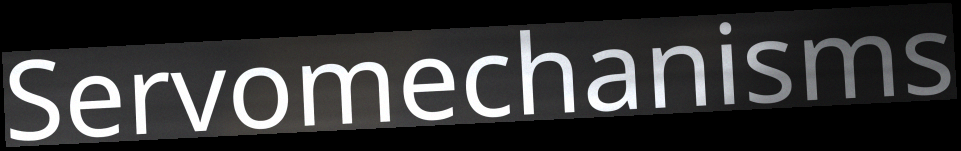
Servomechanisms